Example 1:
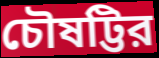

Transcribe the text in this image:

চৌষট্টির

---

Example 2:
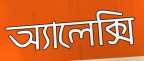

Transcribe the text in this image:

অ্যালেক্সি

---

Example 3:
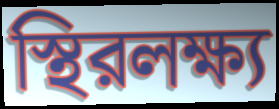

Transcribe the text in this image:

স্থিরলক্ষ্য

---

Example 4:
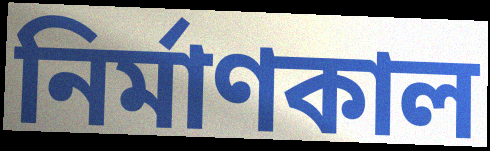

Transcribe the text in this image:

নির্মাণকাল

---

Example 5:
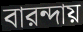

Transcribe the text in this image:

বারন্দায়